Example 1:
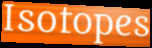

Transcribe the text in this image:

Isotopes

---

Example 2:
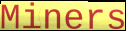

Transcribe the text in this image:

Miners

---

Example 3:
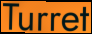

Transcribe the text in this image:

Turret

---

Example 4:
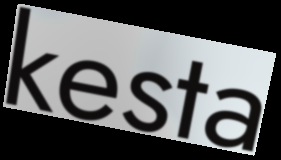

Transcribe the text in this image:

kesta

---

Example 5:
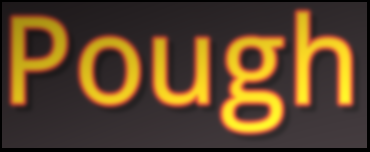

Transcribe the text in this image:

Pough